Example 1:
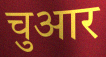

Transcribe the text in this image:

चुआर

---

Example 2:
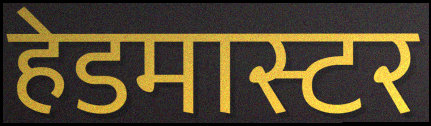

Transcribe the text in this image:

हेडमास्टर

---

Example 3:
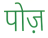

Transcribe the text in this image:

पोज़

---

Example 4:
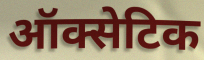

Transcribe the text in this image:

ऑक्सेटिक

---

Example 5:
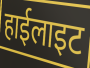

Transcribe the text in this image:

हाईलाइट